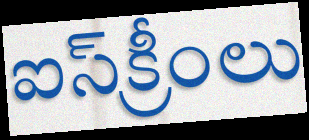
ఐస్‌క్రీంలు